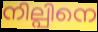
നില്പിനെ